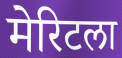
मेरिटला